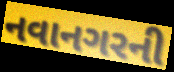
નવાનગરની